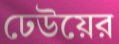
ঢেউয়ের